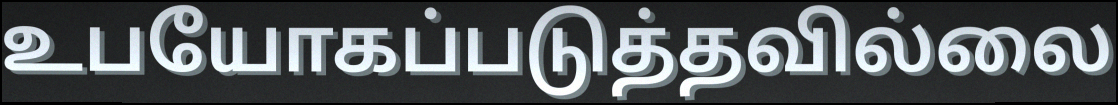
உபயோகப்படுத்தவில்லை